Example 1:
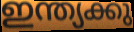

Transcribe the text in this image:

ഇന്ത്യക്കു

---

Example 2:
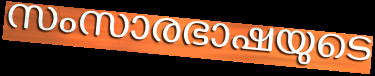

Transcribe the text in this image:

സംസാരഭാഷയുടെ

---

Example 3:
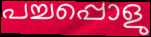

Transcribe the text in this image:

പച്ചപ്പൊളു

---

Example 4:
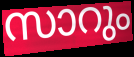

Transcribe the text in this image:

സാറും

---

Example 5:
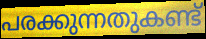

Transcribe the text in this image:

പരക്കുന്നതുകണ്ട്